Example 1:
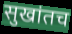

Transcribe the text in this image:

सुखांतच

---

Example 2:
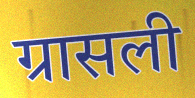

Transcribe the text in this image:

ग्रासली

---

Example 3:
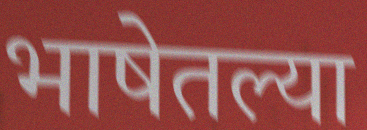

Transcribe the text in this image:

भाषेतल्या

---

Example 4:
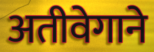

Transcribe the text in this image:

अतीवेगाने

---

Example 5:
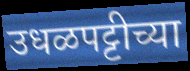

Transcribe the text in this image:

उधळपट्टीच्या